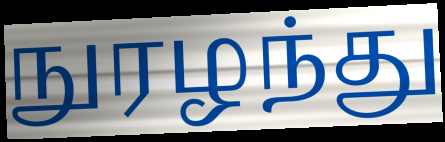
நுரழந்து